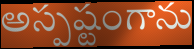
అస్పష్టంగాను